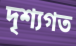
দৃশ্যগত